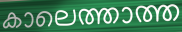
കാലെത്താത്ത